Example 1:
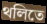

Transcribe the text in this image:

থলিতে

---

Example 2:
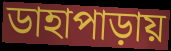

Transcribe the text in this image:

ডাহাপাড়ায়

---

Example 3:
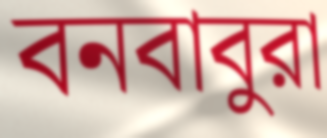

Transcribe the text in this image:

বনবাবুরা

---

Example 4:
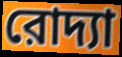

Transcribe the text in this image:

রোদ্যা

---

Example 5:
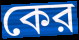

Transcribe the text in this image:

কের